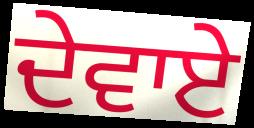
ਦੇਵਾਏ